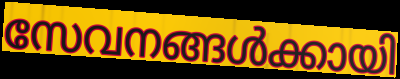
സേവനങ്ങൾക്കായി